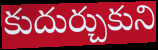
కుదుర్చుకుని